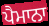
ਪੈਮਾਨਾ